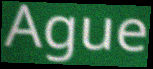
Ague